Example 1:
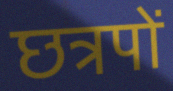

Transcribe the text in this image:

छत्रपों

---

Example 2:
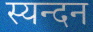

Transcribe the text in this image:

स्यन्दन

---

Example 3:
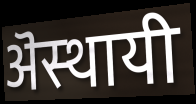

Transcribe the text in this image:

ऄस्थायी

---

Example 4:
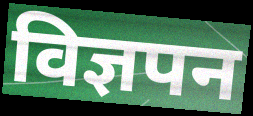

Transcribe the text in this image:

विज्ञपन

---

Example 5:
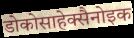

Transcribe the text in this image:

डोकोसाहेक्सैनोइक